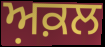
ਅ਼ਕ਼ਲ